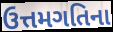
ઉત્તમગતિના